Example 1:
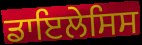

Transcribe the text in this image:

ਡਾਇਲੇਸਿਸ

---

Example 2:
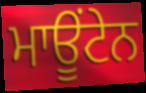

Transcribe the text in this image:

ਮਾਊਂਟੇਨ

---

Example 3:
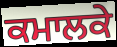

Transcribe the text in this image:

ਕਮਾਲਕੇ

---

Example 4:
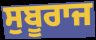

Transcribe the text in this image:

ਸੁਬੂਰਾਜ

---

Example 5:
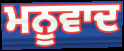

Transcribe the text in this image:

ਮਨੂਵਾਦ